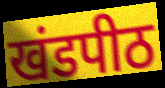
खंडपीठ